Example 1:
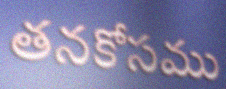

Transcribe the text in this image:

తనకోసము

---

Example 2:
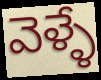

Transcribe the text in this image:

వెళ్ళే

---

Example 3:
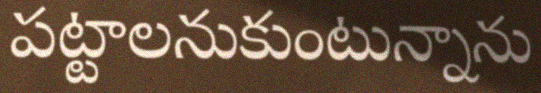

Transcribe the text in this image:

పట్టాలనుకుంటున్నాను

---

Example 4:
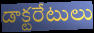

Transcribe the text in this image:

డాక్టరేటులు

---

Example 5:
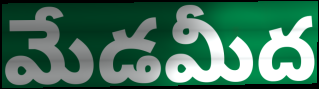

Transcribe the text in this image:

మేడమీద